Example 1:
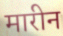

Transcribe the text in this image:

मारीन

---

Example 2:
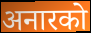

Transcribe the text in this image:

अनारको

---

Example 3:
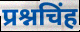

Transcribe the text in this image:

प्रश्नचिंह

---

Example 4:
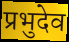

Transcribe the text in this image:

प्रभुदेव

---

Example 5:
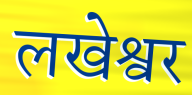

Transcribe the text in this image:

लखेश्वर